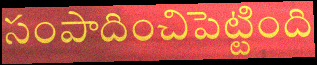
సంపాదించిపెట్టింది